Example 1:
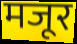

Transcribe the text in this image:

मजूर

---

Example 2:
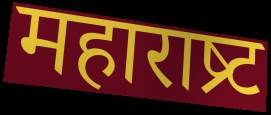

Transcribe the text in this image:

महाराष्र्ट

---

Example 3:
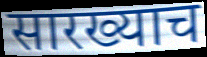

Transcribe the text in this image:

सारख्याच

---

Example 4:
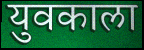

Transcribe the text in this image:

युवकाला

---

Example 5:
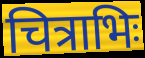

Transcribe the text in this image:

चित्राभिः